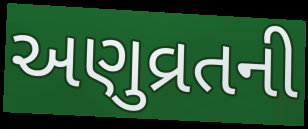
અણુવ્રતની